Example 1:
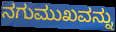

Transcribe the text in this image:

ನಗುಮುಖವನ್ನು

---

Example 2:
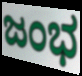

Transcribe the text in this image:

ಜಂಭ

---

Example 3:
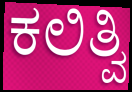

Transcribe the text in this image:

ಕಲಿತ್ವಿ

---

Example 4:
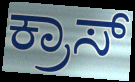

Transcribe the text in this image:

ಕ್ರಾಸ್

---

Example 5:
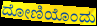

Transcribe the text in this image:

ದೋಣಿಯೊಂದು